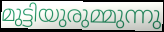
മുട്ടിയുരുമ്മുന്നു